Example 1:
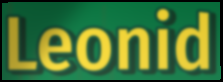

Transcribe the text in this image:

Leonid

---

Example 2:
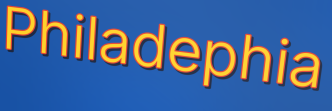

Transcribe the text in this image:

Philadephia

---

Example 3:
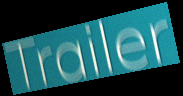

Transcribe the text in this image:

Trailer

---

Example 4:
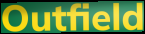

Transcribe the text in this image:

Outfield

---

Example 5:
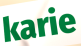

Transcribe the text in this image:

karie